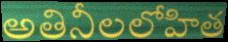
అతినీలలోహిత